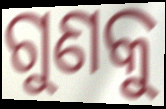
ଗୁଣକୁ